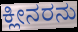
ಕ್ಲೀನರನು